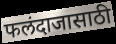
फलंदाजासाठी